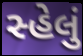
સ્હેલું